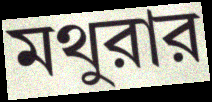
মথুরার